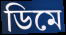
ডিমে